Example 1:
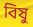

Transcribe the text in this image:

বিষু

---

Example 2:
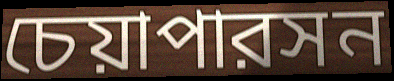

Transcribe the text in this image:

চেয়াপারসন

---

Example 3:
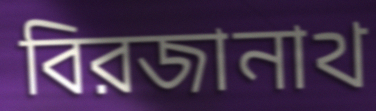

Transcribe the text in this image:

বিরজানাথ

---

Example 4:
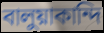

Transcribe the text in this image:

বালুয়াকান্দি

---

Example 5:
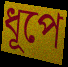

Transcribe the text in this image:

ধূপে